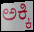
ಅಕ್ಕಿ